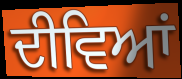
ਦੀਵਿਆਂ